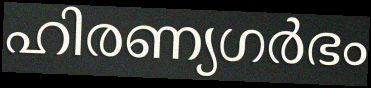
ഹിരണ്യഗർഭം